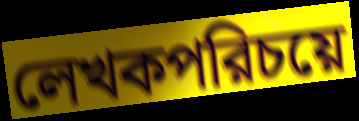
লেখকপরিচয়ে